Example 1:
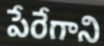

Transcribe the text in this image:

పేరేగాని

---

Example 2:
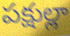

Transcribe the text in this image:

పక్షుల్లా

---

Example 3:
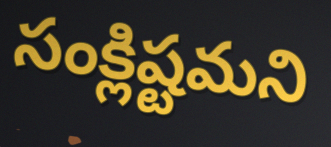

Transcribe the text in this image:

సంక్లిష్టమని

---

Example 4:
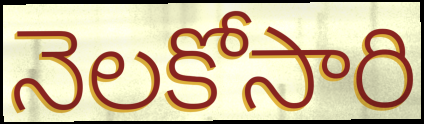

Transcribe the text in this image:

నెలకోసారి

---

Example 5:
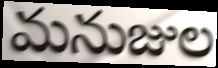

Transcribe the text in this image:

మనుజుల